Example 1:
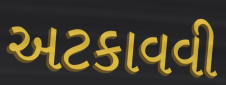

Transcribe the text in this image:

અટકાવવી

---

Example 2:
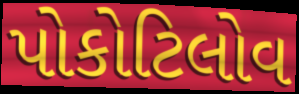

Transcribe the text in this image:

પોકોટિલોવ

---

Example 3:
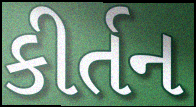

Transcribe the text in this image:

કીર્તન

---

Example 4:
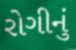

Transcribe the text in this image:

રોગીનું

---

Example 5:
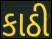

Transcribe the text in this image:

કાઠી